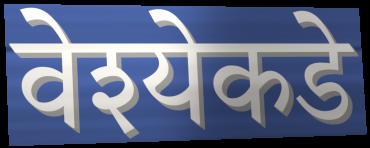
वेश्येकडे